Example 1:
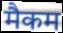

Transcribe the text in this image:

मैकम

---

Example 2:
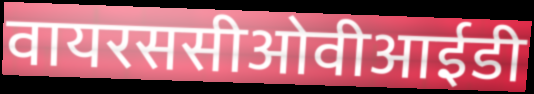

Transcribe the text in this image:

वायरससीओवीआईडी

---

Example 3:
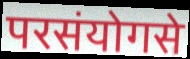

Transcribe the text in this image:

परसंयोगसे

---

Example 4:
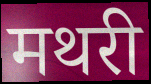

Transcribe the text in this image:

मथरी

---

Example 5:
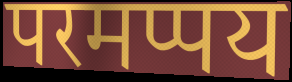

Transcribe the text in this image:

परमप्पय